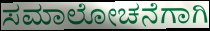
ಸಮಾಲೋಚನೆಗಾಗಿ